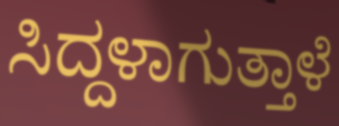
ಸಿದ್ದಳಾಗುತ್ತಾಳೆ